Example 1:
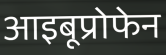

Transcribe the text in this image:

आइबूप्रोफेन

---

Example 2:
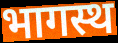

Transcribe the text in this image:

भागस्थ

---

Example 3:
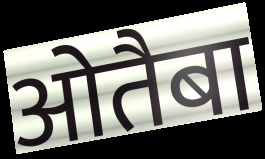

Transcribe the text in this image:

ओतैबा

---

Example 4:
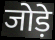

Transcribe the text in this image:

जोड़े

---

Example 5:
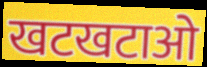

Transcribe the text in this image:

खटखटाओ